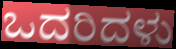
ಒದರಿದಳು